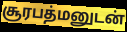
சூரபத்மனுடன்